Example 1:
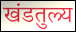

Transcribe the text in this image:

खंडतुल्य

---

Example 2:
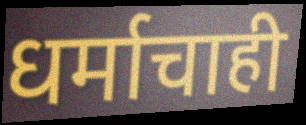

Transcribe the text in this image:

धर्माचाही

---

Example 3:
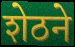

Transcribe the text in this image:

शेठने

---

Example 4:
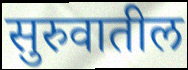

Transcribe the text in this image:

सुरुवातील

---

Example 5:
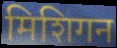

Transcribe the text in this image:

मिशिगन